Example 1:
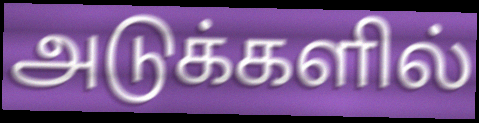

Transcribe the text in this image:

அடுக்களில்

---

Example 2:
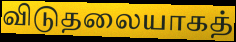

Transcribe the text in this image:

விடுதலையாகத்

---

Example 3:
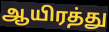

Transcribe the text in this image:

ஆயிரத்து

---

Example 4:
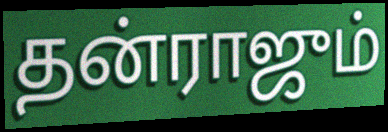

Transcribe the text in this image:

தன்ராஜும்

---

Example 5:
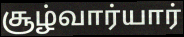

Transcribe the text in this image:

சூழ்வார்யார்